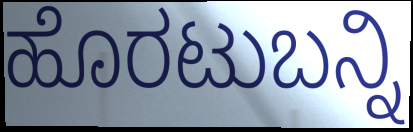
ಹೊರಟುಬನ್ನಿ